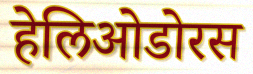
हेलिओडोरस